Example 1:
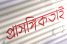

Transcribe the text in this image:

প্রাসঙ্গিকতাই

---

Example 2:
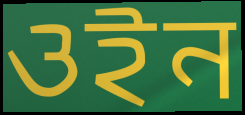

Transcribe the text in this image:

ওইন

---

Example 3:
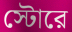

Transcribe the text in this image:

স্টোরে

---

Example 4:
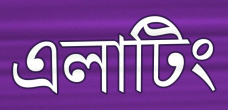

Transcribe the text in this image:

এলাটিং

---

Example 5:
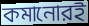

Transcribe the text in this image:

কমানোরই